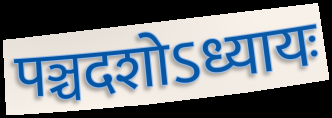
पञ्चदशोऽध्यायः